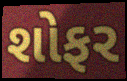
શોફર